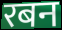
रबन